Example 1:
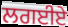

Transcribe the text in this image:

ਲਗਈਏ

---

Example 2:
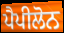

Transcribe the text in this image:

ਪੈਪੀਲੋਨ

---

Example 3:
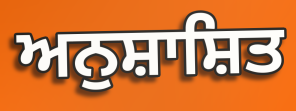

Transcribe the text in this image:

ਅਨੁਸ਼ਾਸ਼ਿਤ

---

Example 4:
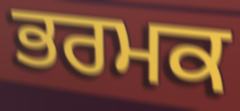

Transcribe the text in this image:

ਭਰਮਕ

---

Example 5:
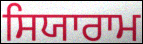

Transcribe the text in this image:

ਸਿਯਾਰਾਮ